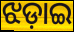
ଝଡ଼ାଇ